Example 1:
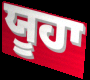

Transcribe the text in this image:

ਯੂਹਾ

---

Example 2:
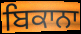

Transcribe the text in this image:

ਬਿਕਾਨਾ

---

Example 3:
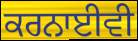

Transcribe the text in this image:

ਕਰਨਾਈਵੀ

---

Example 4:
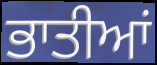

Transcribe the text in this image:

ਭਾਤੀਆਂ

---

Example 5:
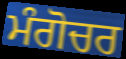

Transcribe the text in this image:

ਮੰਗੋਚਰ